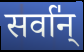
सर्वा॑न्